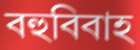
বহুবিবাহ